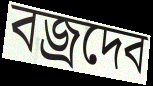
বজ্রদেব